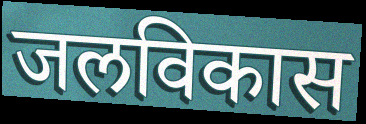
जलविकास